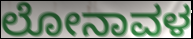
ಲೋನಾವಳ